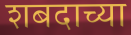
शबदाच्या